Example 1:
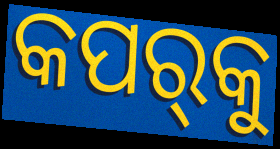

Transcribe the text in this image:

କପର୍‌କୁ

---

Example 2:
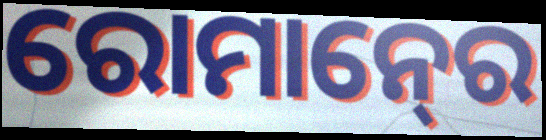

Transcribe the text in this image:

ରୋମାନ୍‍ରେ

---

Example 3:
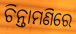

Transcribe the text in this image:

ଚିନ୍ତାମଣିରେ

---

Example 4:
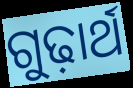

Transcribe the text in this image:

ଗୁଢ଼ାର୍ଥ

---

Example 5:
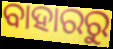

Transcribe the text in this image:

ବାହାରରୁ